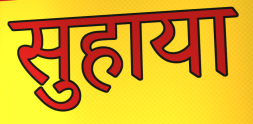
सुहाया